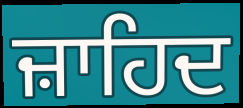
ਜ਼ਾਹਿਦ